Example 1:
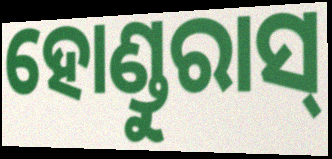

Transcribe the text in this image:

ହୋଣ୍ଡୁରାସ୍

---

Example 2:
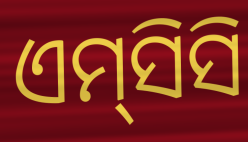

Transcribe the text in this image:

ଏମ୍‌ସିସି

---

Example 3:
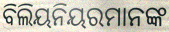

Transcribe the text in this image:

ବିଲିୟନିୟରମାନଙ୍କ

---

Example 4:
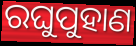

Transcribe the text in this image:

ରଘୁପୁହାଣ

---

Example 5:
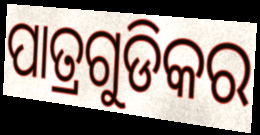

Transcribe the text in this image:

ପାତ୍ରଗୁଡିକର